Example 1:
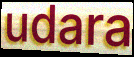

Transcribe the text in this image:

udara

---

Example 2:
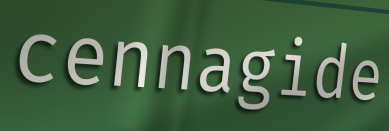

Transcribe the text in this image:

cennagide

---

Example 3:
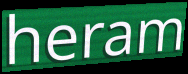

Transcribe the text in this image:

heram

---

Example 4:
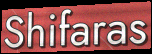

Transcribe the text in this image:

Shifaras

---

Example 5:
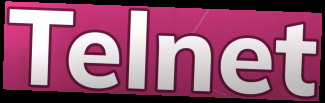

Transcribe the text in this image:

Telnet